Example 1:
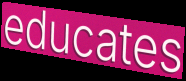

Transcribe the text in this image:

educates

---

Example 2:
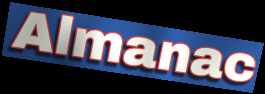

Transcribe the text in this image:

Almanac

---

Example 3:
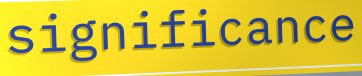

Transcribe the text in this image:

significance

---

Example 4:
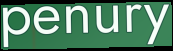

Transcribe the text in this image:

penury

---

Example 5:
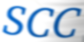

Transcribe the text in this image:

SCC